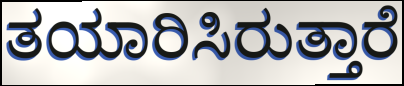
ತಯಾರಿಸಿರುತ್ತಾರೆ